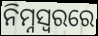
ନିମ୍ନସ୍ୱରରେ